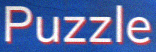
Puzzle